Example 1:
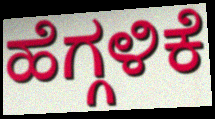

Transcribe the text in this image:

ಹೆಗ್ಗಳಿಕೆ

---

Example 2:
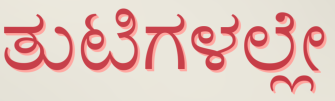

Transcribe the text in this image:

ತುಟಿಗಳಲ್ಲೇ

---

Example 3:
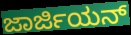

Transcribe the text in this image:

ಜಾರ್ಜಿಯನ್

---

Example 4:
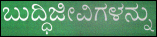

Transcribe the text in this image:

ಬುದ್ಧಿಜೀವಿಗಳನ್ನು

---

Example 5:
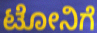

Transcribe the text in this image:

ಟೋನಿಗೆ